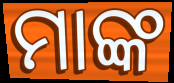
ମାଙ୍କ